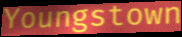
Youngstown